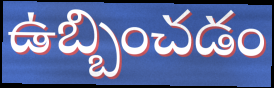
ఉబ్బించడం